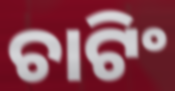
ଚାଟିଂ